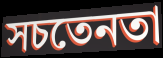
সচতেনতা